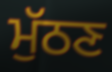
ਮੁੱਠਣ